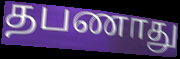
தபணாது